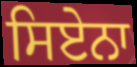
ਸਿਏਨਾ